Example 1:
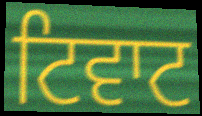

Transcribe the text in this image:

ਟਿਵਾਟ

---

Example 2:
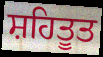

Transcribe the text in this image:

ਸ਼ਹਿਤੂਤ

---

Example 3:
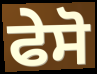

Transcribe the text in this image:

ਫੇਸੋ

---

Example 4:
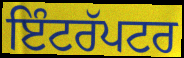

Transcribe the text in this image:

ਇੰਟਰੱਪਟਰ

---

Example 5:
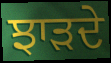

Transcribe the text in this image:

ਝਾੜਦੇ